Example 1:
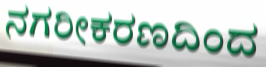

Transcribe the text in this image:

ನಗರೀಕರಣದಿಂದ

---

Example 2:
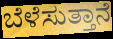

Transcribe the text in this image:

ಬೆಳೆಸುತ್ತಾನೆ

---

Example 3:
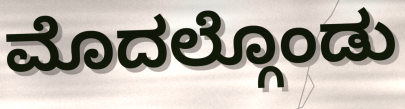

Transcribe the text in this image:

ಮೊದಲ್ಗೊಂಡು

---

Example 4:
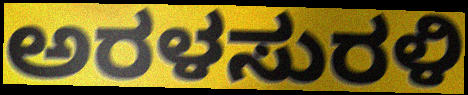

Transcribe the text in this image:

ಅರಳಸುರಳಿ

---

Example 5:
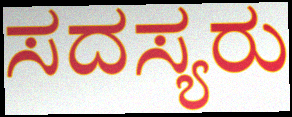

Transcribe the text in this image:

ಸದಸ್ಯರು